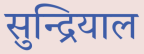
सुन्द्रियाल